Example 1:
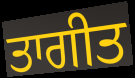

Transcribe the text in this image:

ਤਾਗੀਤ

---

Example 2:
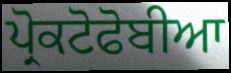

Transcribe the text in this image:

ਪ੍ਰੋਕਟੋਫੋਬੀਆ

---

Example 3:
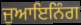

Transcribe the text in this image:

ਜੁਆਇਨਿੰਗ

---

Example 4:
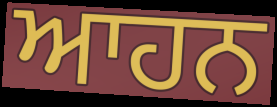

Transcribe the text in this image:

ਆਹਨ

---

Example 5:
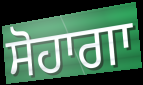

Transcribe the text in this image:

ਸੋਹਾਗਾ